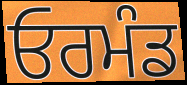
ਓਰਮੰਡ